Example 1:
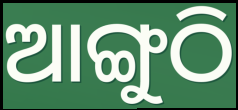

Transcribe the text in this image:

ଆଙ୍ଗୁଠି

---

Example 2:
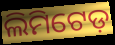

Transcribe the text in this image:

ଲିମିଟେଡ଼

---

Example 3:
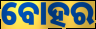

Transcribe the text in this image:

ବୋହର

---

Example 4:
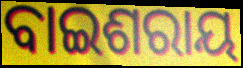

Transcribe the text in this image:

ବାଇଶରାୟ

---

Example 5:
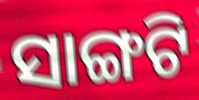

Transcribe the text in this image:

ସାଙ୍ଗଟି